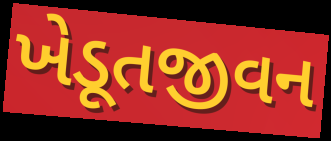
ખેડૂતજીવન